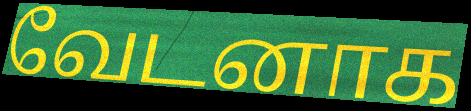
வேடனாக